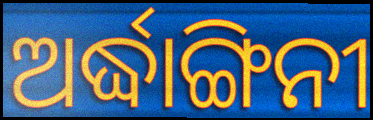
ଅର୍ଦ୍ଧାଙ୍ଗିନୀ